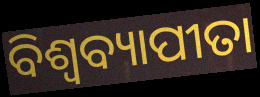
ବିଶ୍ୱବ୍ୟାପୀତା